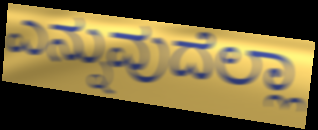
ಎನ್ನುವುದೆಲ್ಲಾ